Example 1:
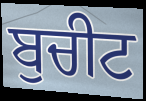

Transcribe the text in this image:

ਬੁਚੀਟ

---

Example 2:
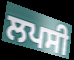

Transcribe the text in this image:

ਲਪਸੀ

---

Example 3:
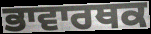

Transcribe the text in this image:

ਭਾਵਾਰਥਕ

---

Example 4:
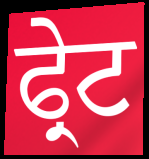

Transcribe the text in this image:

ਫ੍ਰੇਟ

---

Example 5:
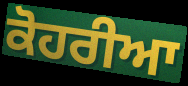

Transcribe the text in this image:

ਕੋਹਰੀਆ